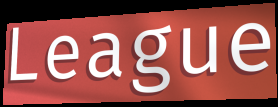
League